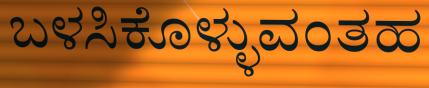
ಬಳಸಿಕೊಳ್ಳುವಂತಹ